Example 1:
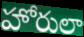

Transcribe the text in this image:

హోరులా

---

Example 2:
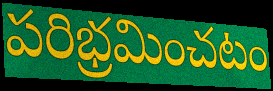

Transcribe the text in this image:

పరిభ్రమించటం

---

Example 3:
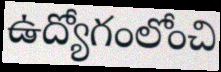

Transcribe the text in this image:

ఉద్యోగంలోంచి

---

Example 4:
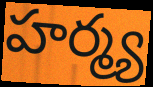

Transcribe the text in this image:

హర్మ్య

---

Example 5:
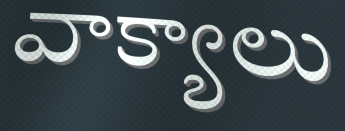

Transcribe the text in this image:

వాక్యాలు